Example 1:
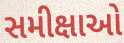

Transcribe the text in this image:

સમીક્ષાઓ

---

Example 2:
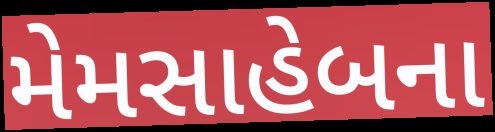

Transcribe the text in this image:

મેમસાહેબના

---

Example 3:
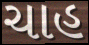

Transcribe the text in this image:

ચાહ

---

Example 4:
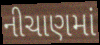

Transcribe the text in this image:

નીચાણમાં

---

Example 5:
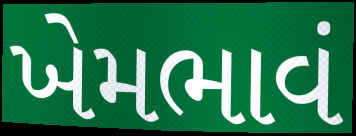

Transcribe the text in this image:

ખેમભાવં